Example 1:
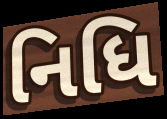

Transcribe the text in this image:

નિધિ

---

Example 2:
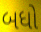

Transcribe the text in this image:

બધો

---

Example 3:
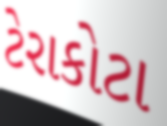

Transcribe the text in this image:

ટેરાકોટા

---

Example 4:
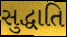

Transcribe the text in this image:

સુદ્ધાતિ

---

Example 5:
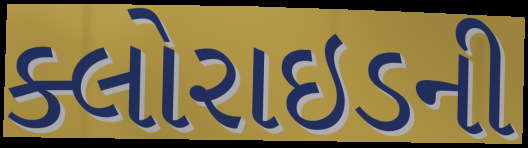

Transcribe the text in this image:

ક્લોરાઇડની